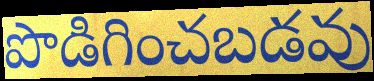
పొడిగించబడవు